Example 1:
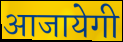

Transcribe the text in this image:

आजायेगी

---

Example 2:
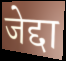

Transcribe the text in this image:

जेद्दा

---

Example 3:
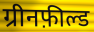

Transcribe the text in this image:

ग्रीनफ़ील्ड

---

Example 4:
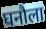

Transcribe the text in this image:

घनौला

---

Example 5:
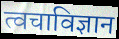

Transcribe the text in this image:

त्वचाविज्ञान